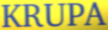
KRUPA